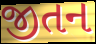
જીતન